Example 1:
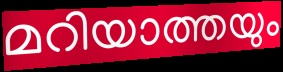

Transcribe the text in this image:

മറിയാത്തയും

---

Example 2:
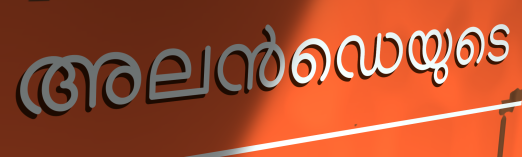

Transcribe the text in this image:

അലൻഡെയുടെ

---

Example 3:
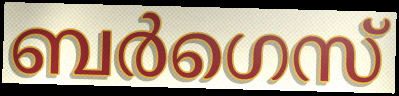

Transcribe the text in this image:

ബർഗെസ്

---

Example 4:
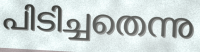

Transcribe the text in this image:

പിടിച്ചതെന്നു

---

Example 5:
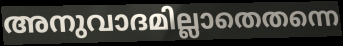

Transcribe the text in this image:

അനുവാദമില്ലാതെതന്നെ